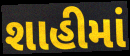
શાહીમાં